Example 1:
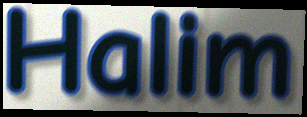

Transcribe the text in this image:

Halim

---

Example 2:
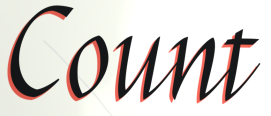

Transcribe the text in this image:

Count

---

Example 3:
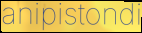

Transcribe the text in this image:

anipistondi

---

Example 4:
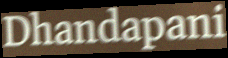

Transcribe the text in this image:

Dhandapani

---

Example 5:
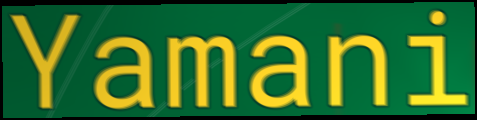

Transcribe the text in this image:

Yamani